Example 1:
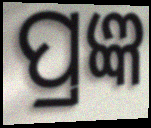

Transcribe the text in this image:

ପ୍ରଜ୍ଞ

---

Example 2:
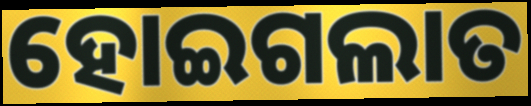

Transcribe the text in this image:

ହୋଇଗଲାତ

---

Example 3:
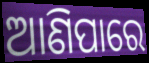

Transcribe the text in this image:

ଆଣିପାରେ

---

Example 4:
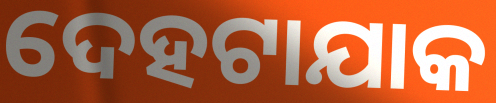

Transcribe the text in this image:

ଦେହଟାଯାକ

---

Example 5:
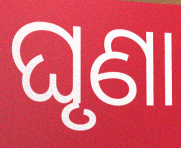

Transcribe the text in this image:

ଘୃଣା